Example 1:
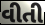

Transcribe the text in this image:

વીતી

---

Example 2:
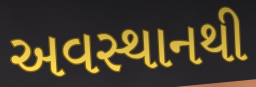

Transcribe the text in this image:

અવસ્થાનથી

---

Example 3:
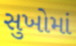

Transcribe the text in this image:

સુખોમાં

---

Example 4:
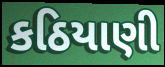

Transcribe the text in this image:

કઠિયાણી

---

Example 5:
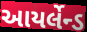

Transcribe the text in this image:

આયર્લેન્ડ